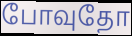
போவுதோ